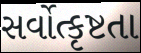
સર્વોત્કૃષ્ટતા